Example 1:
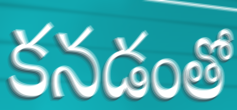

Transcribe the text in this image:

కనడంతో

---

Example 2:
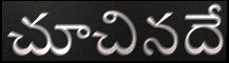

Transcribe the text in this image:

చూచినదే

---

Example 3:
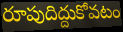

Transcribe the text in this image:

రూపుదిద్దుకోవటం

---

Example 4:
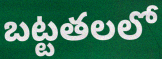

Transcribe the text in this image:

బట్టతలలో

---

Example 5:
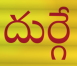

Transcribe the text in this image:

దుర్గే